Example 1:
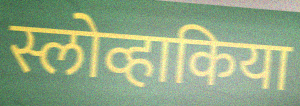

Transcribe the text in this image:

स्लोव्हाकिया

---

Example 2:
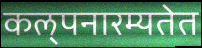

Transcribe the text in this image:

कल्पनारम्यतेत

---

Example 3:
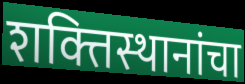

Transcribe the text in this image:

शक्तिस्थानांचा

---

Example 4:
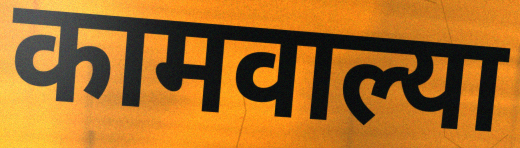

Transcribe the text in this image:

कामवाल्या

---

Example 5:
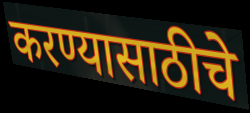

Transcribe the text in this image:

करण्यासाठीचे